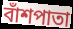
বাঁশপাতা